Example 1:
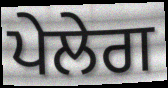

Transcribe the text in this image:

ਪੇਲੇਗ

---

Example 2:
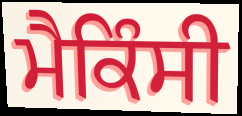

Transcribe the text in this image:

ਮੈਕਿੰਸੀ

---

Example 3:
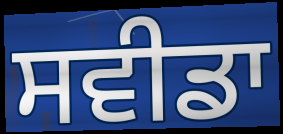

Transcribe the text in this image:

ਸਵੀਡਾ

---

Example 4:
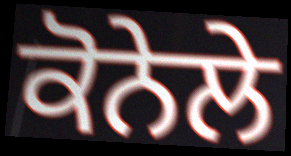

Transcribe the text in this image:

ਕੋਨੇਲੇ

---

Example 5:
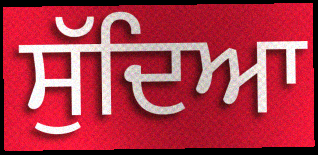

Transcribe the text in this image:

ਸੁੱਦਿਆ